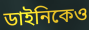
ডাইনিকেও